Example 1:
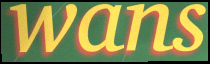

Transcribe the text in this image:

wans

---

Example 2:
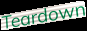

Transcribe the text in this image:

Teardown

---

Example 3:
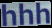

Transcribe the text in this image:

hhh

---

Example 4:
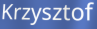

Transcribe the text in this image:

Krzysztof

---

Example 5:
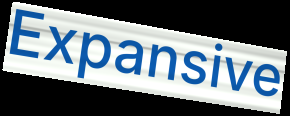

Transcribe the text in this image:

Expansive